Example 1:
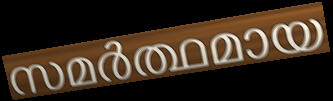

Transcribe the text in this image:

സമർത്ഥമായ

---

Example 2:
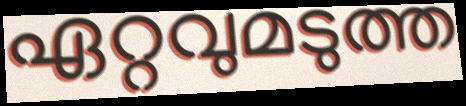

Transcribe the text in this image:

ഏറ്റവുമടുത്ത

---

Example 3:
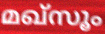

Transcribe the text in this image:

മഖ്സൂം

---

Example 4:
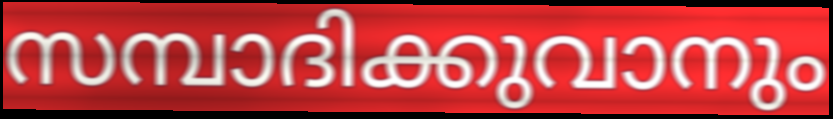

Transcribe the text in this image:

സമ്പാദിക്കുവാനും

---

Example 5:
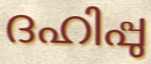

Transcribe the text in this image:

ദഹിപ്പു